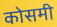
कोसमी